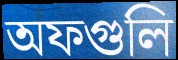
অফগুলি